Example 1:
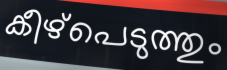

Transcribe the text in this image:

കീഴ്പെടുത്തും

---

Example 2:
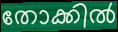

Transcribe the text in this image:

തോക്കിൽ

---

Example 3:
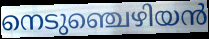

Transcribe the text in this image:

നെടുഞ്ചെഴിയൻ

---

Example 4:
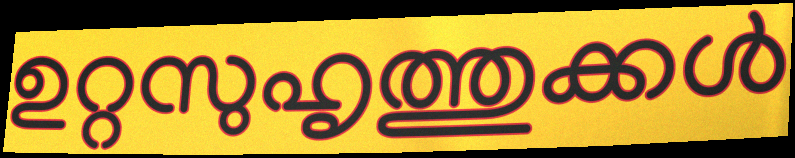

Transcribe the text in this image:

ഉറ്റസുഹൃത്തുക്കൾ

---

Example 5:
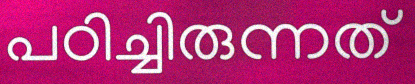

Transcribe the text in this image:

പഠിച്ചിരുന്നത്